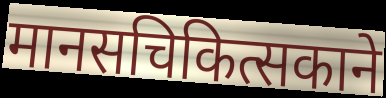
मानसचिकित्सकाने